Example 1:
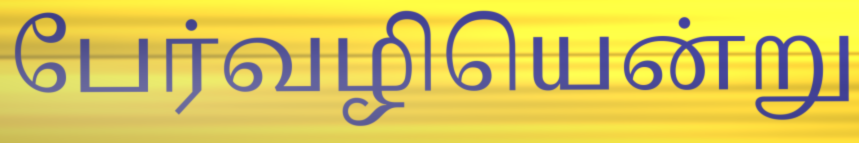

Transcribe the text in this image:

பேர்வழியென்று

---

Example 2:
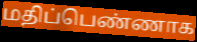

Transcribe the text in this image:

மதிப்பெண்ணாக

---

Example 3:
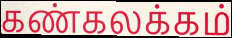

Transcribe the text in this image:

கண்கலக்கம்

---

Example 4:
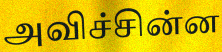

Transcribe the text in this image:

அவிச்சின்ன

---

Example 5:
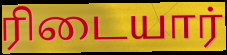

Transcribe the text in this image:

ரிடையார்